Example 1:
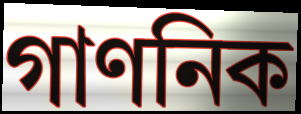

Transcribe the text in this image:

গাণনিক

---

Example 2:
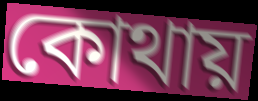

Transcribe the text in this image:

কোথায়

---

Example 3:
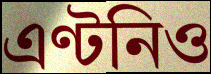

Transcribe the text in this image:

এণ্টনিও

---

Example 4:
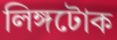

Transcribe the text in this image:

লিঙ্গটোক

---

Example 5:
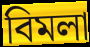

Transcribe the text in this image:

বিমলা